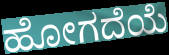
ಹೋಗದೆಯೆ